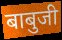
बाबुजी